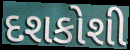
દશકોશી